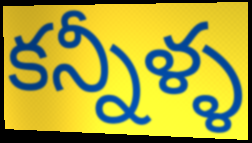
కన్నీళ్ళ